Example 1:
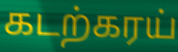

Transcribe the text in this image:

கடற்கரய்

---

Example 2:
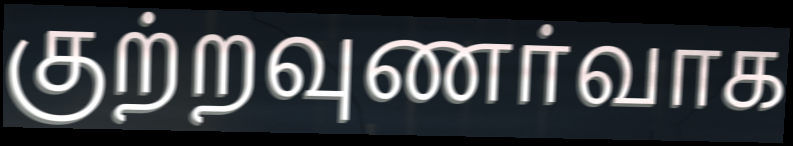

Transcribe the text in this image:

குற்றவுணர்வாக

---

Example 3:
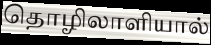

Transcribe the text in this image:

தொழிலாளியால்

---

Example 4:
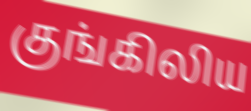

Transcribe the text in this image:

குங்கிலிய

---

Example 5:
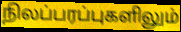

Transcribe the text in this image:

நிலப்பரப்புகளிலும்